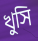
খুসি